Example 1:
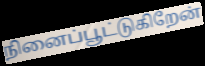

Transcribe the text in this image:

நினைப்பூட்டுகிறேன்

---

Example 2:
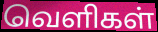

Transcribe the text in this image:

வெளிகள்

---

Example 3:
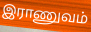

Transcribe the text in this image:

இராணுவம்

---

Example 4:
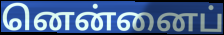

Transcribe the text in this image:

னென்னைப்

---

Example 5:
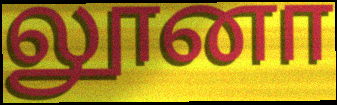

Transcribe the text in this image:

லூனா